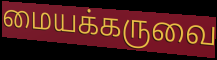
மையக்கருவை